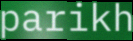
parikh